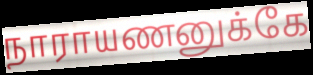
நாராயணனுக்கே